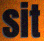
sit